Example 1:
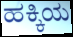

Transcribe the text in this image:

ಹಕ್ಕಿಯ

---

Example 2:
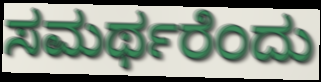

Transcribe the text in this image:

ಸಮರ್ಥರೆಂದು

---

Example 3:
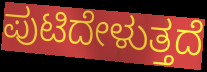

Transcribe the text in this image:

ಪುಟಿದೇಳುತ್ತದೆ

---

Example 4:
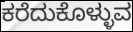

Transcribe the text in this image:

ಕರೆದುಕೊಳ್ಳುವ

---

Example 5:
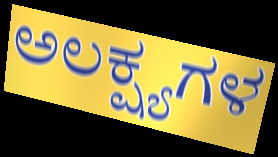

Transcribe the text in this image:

ಅಲಕ್ಷ್ಯಗಳ